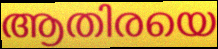
ആതിരയെ